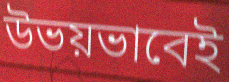
উভয়ভাবেই